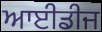
ਆਈਡੀਜ